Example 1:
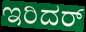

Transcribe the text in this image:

ಇರಿದರ್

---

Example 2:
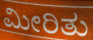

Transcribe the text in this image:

ಮೀರಿತು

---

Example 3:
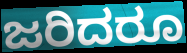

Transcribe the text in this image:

ಜರಿದರೂ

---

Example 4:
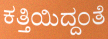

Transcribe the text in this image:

ಕತ್ತಿಯಿದ್ದಂತೆ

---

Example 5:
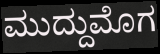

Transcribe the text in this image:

ಮುದ್ದುಮೊಗ